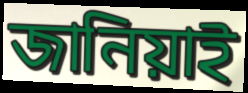
জানিয়াই